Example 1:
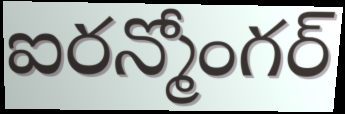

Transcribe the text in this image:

ఐరన్మోంగర్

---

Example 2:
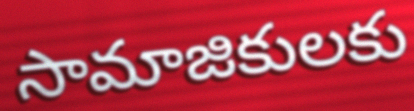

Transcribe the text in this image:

సామాజికులకు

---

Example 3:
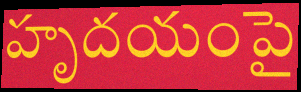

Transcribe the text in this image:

హృదయంపై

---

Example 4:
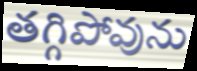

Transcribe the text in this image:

తగ్గిపోవును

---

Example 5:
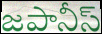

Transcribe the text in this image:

జపానీస్